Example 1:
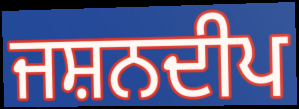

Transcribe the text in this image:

ਜਸ਼ਨਦੀਪ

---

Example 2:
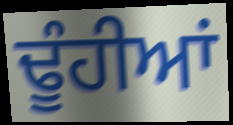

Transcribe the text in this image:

ਢੂੰਹੀਆਂ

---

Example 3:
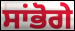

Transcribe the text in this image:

ਸਾਂਭੋਗੇ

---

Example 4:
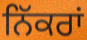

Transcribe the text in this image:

ਨਿੱਕਰਾਂ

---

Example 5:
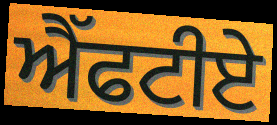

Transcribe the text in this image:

ਐੱਫਟੀਏ